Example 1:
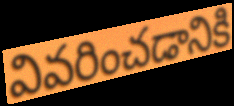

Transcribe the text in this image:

వివరించడానికి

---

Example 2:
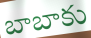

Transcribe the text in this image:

బాబాకు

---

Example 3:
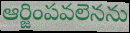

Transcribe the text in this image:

ఆర్జింపవలెనను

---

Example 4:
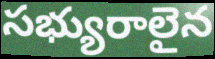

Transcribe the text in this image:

సభ్యురాలైన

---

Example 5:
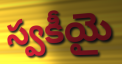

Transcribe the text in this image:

స్వకీయై